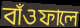
বাঁওফালে